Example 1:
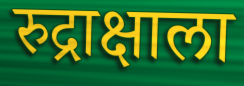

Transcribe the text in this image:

रुद्राक्षाला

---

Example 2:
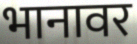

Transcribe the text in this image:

भानावर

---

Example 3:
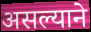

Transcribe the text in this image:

असल्‍याने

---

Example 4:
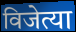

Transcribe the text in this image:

विजेत्या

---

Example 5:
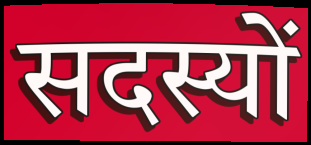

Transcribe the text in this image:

सदस्यों